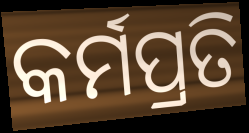
କର୍ମପ୍ରତି